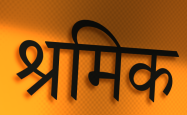
श्रमिक